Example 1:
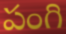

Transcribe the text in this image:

పంగి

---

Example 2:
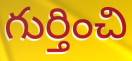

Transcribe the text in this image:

గుర్తించి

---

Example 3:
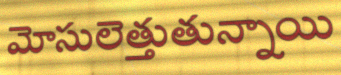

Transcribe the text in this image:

మోసులెత్తుతున్నాయి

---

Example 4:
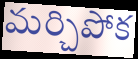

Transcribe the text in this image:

మర్చిపోక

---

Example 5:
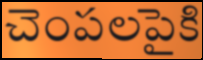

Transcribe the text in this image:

చెంపలపైకి